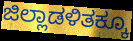
ಜಿಲ್ಲಾಡಳಿತಕ್ಕೂ